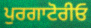
ਪੁਰਗਾਟੋਰੀਓ